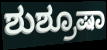
ಶುಶ್ರೂಷಾ